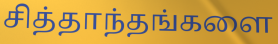
சித்தாந்தங்களை